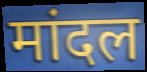
मांदल